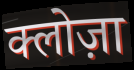
क्लोज़ा